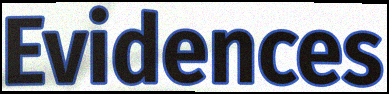
Evidences